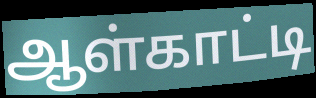
ஆள்காட்டி